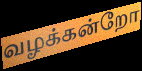
வழக்கன்றோ